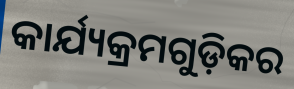
କାର୍ଯ୍ୟକ୍ରମଗୁଡ଼ିକର